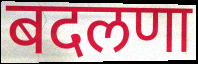
बदलणा